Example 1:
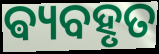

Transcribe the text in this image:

ଵ୍ୟବହୃତ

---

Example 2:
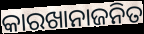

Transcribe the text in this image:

କାରଖାନାଜନିତ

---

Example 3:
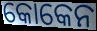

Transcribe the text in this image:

କୋକେନ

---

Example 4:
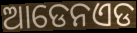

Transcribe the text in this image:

ଆଡେନଏଡ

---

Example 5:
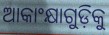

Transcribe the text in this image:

ଆକାଂକ୍ଷାଗୁଡ଼ିକୁ